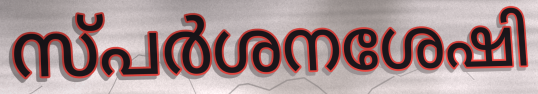
സ്പർശനശേഷി